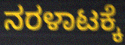
ನರಳಾಟಕ್ಕೆ